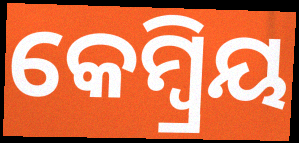
କେମ୍ବ୍ରିୟ